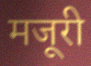
मजूरी